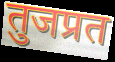
तुजप्रत